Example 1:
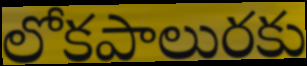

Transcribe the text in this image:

లోకపాలురకు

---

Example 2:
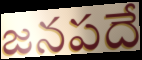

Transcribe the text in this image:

జనపదే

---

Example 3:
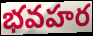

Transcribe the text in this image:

భవహర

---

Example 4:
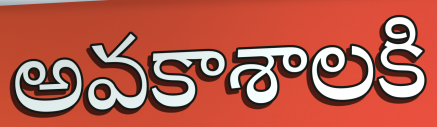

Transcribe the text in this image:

అవకాశాలకి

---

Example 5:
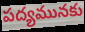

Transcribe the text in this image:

పద్యమునకు